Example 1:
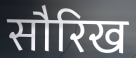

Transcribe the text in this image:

सौरिख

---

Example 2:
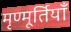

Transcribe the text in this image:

मृण्मूर्तियाँ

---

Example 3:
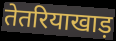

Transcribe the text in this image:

तेतरियाखाड़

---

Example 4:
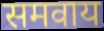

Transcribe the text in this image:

समवाय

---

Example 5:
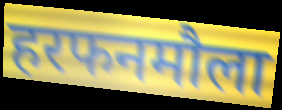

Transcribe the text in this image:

हरफनमौला